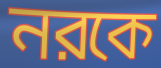
নরকে